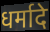
धर्मादे